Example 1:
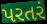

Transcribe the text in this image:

પરતરં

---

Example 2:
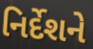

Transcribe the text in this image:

નિર્દેશને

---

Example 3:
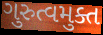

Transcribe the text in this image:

ગુરુત્વમુક્ત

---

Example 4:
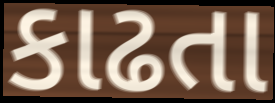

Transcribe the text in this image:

કાઢતા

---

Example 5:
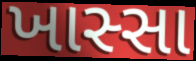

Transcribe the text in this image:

ખાસ્સા